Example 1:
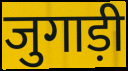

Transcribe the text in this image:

जुगाड़ी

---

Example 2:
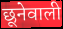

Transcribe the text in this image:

छूनेवाली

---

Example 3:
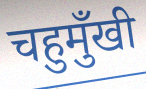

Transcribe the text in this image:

चहुमुँखी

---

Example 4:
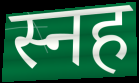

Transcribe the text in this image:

स्नह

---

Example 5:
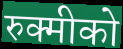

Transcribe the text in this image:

रुक्मीको